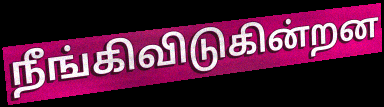
நீங்கிவிடுகின்றன